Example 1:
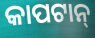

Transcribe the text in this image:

କାପଟାନ୍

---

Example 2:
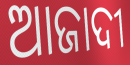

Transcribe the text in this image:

ଆଜାଦୀ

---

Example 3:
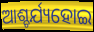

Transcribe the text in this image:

ଆଶ୍ଚର୍ଯ୍ୟହୋଇ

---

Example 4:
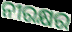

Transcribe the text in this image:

ନୀରକ୍ଷର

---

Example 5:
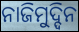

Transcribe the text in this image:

ନାଜିମୁଦ୍ଦିନ